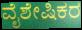
ವೈಶೇಷಿಕರ